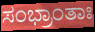
ಸಂಭ್ರಾಂತಾಃ